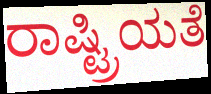
ರಾಷ್ಟ್ರಿಯತೆ